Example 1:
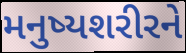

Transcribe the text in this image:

મનુષ્યશરીરને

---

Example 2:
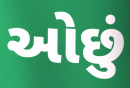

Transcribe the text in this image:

ઓછું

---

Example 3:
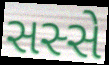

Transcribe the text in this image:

સસ્સે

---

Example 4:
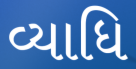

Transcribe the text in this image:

વ્યાધિ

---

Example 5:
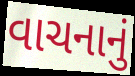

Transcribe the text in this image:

વાચનાનું